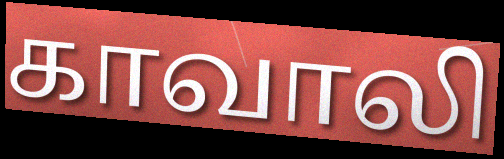
காவாலி